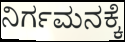
ನಿರ್ಗಮನಕ್ಕೆ